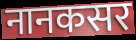
नानकसर